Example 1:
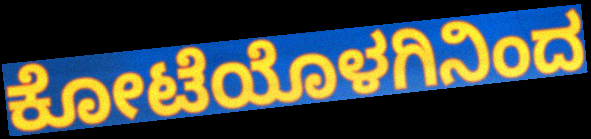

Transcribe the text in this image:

ಕೋಟೆಯೊಳಗಿನಿಂದ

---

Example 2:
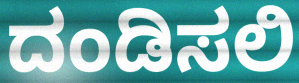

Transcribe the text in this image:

ದಂಡಿಸಲಿ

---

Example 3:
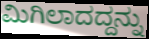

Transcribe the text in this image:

ಮಿಗಿಲಾದದ್ದನ್ನು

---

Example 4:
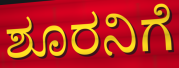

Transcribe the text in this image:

ಶೂರನಿಗೆ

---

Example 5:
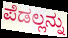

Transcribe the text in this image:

ಪೆಡಲ್ಲನ್ನು